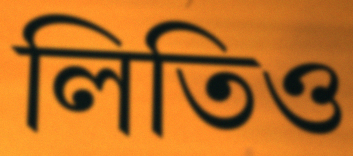
লিতিও